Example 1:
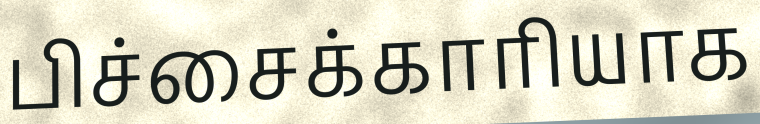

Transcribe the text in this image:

பிச்சைக்காரியாக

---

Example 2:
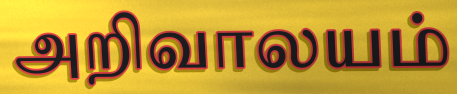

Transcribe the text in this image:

அறிவாலயம்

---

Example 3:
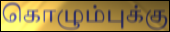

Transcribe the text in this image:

கொழும்புக்கு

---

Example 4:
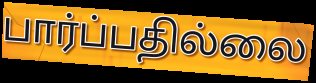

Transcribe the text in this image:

பார்ப்பதில்லை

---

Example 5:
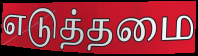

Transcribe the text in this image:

எடுத்தமை